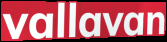
vallavan